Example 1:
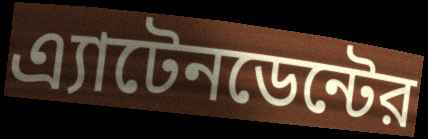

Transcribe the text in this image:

এ্যাটেনডেন্টের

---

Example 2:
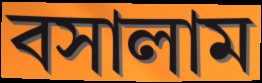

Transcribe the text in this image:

বসালাম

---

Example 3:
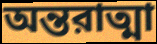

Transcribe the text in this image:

অন্তরাত্মা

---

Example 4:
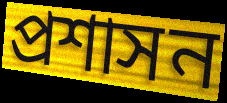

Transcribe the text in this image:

প্রশাসন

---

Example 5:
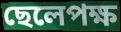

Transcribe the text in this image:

ছেলেপক্ষ